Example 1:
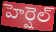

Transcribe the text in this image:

హెర్షెల్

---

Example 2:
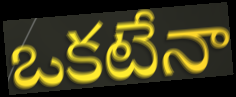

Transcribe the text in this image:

ఒకటేనా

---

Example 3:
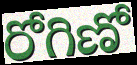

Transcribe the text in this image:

రోగిణో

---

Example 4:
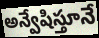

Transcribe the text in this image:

అన్వేషిస్తూనే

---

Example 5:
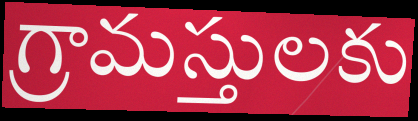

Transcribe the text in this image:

గ్రామస్తులకు